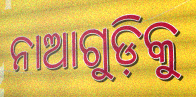
ନାଆଗୁଡ଼ିକୁ